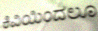
ಕಿವಿಯಿಂದಲೂ